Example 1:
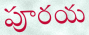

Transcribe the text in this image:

పూరయ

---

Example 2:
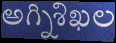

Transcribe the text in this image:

అగ్నిశిఖల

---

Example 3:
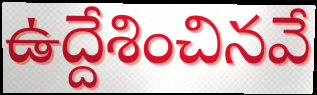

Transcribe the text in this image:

ఉద్దేశించినవే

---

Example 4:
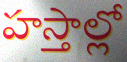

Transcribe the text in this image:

హస్తాల్లో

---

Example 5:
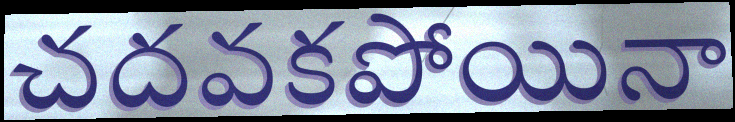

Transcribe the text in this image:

చదవకపోయినా